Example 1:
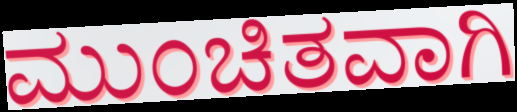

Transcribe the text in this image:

ಮುಂಚಿತವಾಗಿ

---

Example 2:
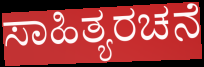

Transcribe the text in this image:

ಸಾಹಿತ್ಯರಚನೆ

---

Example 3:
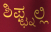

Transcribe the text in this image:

ಶಿಫ್ಟ್ನಲ್ಲಿ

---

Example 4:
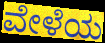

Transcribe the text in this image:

ವೇಳೆಯ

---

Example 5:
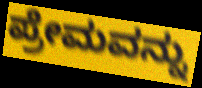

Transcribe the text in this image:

ಪ್ರೇಮವನ್ನು